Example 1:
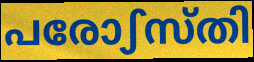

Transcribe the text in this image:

പരോഽസ്തി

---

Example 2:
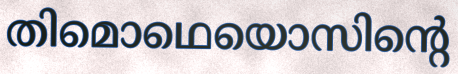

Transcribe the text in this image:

തിമൊഥെയൊസിന്റെ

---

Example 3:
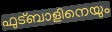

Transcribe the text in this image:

ഫുട്ബാളിനെയും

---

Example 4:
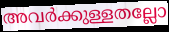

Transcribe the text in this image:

അവർക്കുള്ളതല്ലോ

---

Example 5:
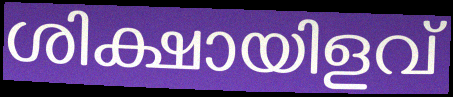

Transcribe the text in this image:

ശിക്ഷായിളവ്